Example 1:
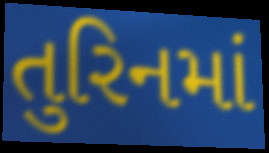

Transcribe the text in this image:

તુરિનમાં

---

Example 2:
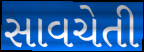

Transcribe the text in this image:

સાવચેતી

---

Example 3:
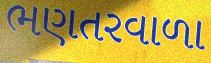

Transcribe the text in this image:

ભણતરવાળા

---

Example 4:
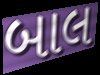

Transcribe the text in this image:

બાલ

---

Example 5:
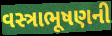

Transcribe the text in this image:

વસ્ત્રાભૂષણની